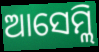
ଆସେମ୍ଲି